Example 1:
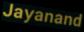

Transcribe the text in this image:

Jayanand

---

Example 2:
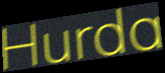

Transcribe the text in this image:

Hurda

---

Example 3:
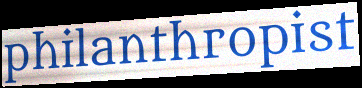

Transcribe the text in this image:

philanthropist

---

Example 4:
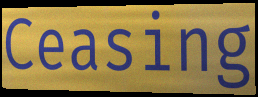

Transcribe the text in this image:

Ceasing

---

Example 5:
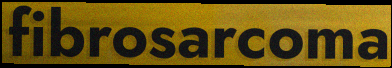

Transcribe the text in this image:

fibrosarcoma